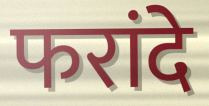
फरांदे